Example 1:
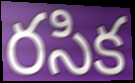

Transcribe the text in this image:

రసిక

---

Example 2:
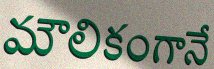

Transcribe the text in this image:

మౌలికంగానే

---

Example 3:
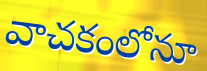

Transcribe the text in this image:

వాచకంలోనూ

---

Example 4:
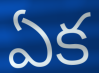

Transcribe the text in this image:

ఏక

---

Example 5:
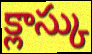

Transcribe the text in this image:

క్లాస్కు